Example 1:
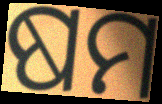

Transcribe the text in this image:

ଷମ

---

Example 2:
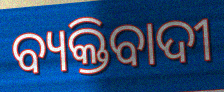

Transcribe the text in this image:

ବ୍ୟକ୍ତିବାଦୀ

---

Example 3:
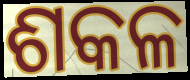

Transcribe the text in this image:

ଶକଳ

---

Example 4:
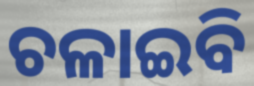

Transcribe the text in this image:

ଚଳାଇବି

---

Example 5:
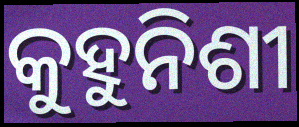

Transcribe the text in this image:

କୁହୁନିଶୀ